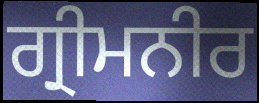
ਗ੍ਰੀਮਨੀਰ